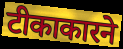
टीकाकारने